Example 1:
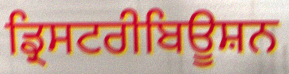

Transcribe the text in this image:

ਡ੍ਰਿਸਟਰੀਬਿਊਸ਼ਨ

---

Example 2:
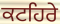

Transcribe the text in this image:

ਕਟਹਿਰੇ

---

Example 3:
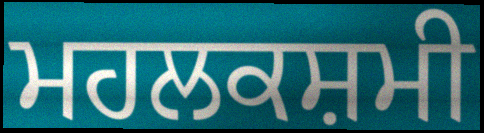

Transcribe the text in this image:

ਮਹਲਕਸ਼ਮੀ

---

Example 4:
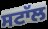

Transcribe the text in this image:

ਸਟਾੱਲ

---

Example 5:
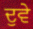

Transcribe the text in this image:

ਦੁਵੇ